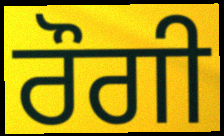
ਰੌਗੀ